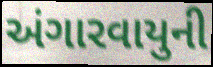
અંગારવાયુની